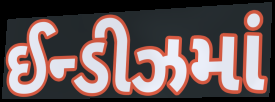
ઈન્ડીઝમાં